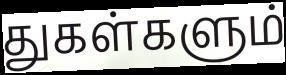
துகள்களும்